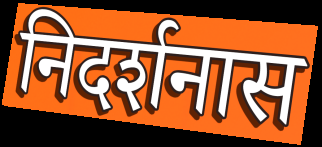
निदर्शनास